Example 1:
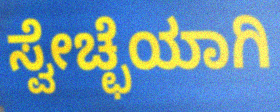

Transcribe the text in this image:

ಸ್ವೇಚ್ಛೆಯಾಗಿ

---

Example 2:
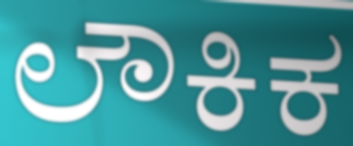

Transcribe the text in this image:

ಲೌಕಿಕ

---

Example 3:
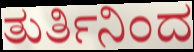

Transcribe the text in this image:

ತುರ್ತಿನಿಂದ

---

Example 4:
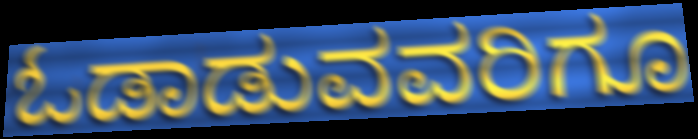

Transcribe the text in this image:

ಓಡಾಡುವವರಿಗೂ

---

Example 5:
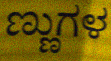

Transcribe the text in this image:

ಣ್ಣುಗಳ